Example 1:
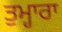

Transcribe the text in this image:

ਤੁਮ੍ਹਾਰਾ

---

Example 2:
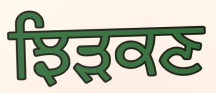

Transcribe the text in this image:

ਝਿੜਕਣ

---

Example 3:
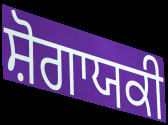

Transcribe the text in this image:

ਸ਼ੋਗਾਯਕੀ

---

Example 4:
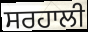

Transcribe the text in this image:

ਸਰਹਾਲੀ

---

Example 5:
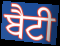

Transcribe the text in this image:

ਬੈਟੀ